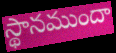
స్థానముందా